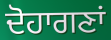
ਦੋਹਾਗਣਾਂ